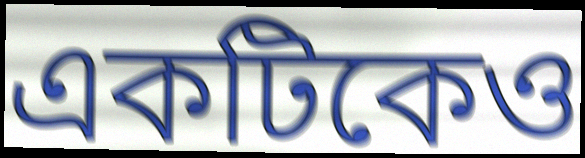
একটিকেও